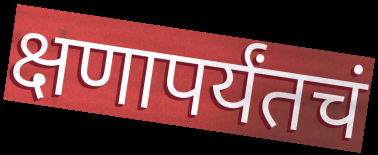
क्षणापर्यंतचं